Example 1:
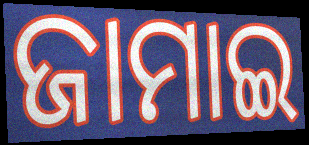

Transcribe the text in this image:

ଜାମାଇ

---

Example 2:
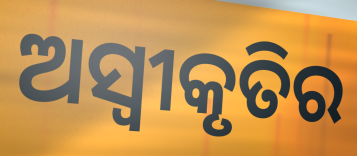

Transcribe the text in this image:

ଅସ୍ୱୀକୃତିର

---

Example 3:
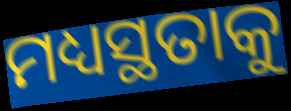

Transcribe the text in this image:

ମଧ୍ୟସ୍ଥତାକୁ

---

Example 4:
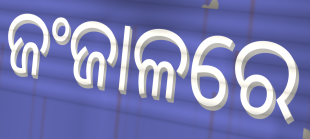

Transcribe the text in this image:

ଜଂଜାଳରେ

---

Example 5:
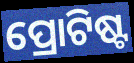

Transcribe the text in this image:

ପ୍ରୋଟିଷ୍ଟ